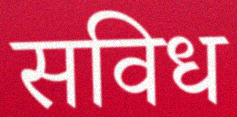
सविध